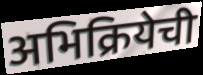
अभिक्रियेची